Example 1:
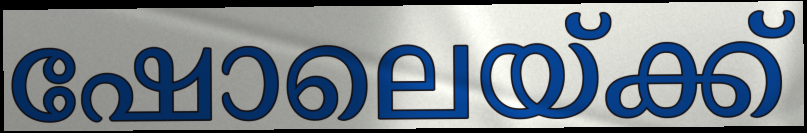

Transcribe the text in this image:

ഷോലെയ്ക്ക്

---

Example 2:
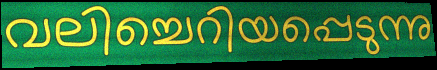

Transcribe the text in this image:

വലിച്ചെറിയപ്പെടുന്നു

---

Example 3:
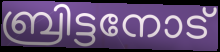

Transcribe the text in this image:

ബ്രിട്ടനോട്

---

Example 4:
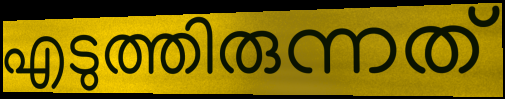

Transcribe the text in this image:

എടുത്തിരുന്നത്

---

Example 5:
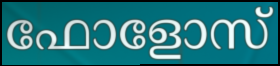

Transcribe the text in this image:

ഫോളോസ്